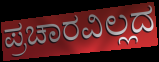
ಪ್ರಚಾರವಿಲ್ಲದ